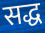
सद्ध